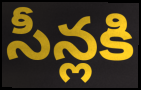
సీన్లకి